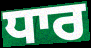
ਧਾਰ